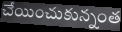
చేయించుకున్నంత